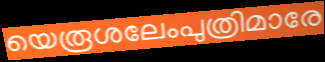
യെരൂശലേംപുത്രിമാരേ